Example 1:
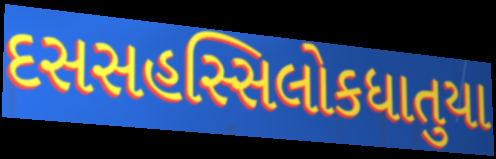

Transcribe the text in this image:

દસસહસ્સિલોકધાતુયા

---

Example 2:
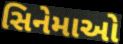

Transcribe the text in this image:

સિનેમાઓ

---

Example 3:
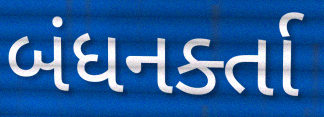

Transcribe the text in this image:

બંધનર્ક્તા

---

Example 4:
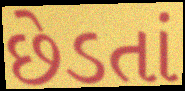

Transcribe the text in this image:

છેડતાં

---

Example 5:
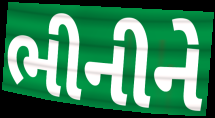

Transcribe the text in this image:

ભીનીને